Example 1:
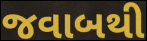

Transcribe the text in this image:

જવાબથી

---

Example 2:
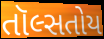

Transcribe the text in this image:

તૉલ્સતોય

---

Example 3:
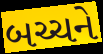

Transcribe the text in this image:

બચ્ચને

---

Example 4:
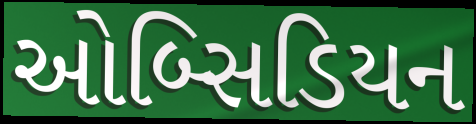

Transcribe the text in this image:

ઓબ્સિડિયન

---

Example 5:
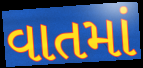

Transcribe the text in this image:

વાતમાં